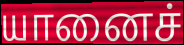
யானைச்